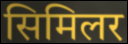
सिमिलर